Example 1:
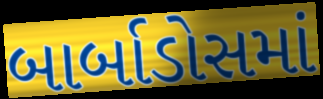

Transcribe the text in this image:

બાર્બાડોસમાં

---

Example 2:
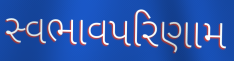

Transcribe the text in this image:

સ્વભાવપરિણામ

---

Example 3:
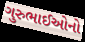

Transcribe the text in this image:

ગુરુભાઈઓનો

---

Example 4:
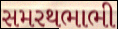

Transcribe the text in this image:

સમરથભાભી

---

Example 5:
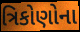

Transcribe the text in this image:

ત્રિકોણોના